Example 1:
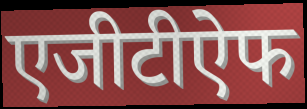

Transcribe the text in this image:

एजीटीऐफ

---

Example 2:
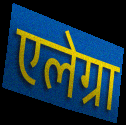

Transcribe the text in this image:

एलेग्रा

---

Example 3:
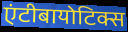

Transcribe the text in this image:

एंटीबायोटिक्स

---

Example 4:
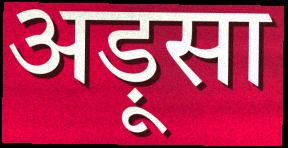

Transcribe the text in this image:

अड़ूसा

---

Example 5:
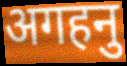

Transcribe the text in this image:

अगहनु